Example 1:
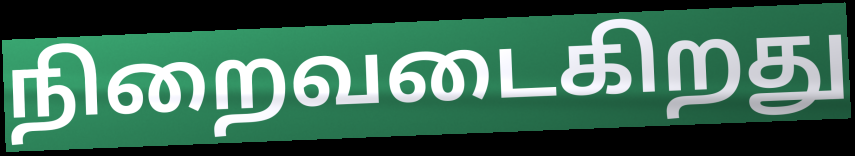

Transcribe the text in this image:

நிறைவடைகிறது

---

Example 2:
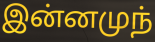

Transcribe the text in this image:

இன்னமுந்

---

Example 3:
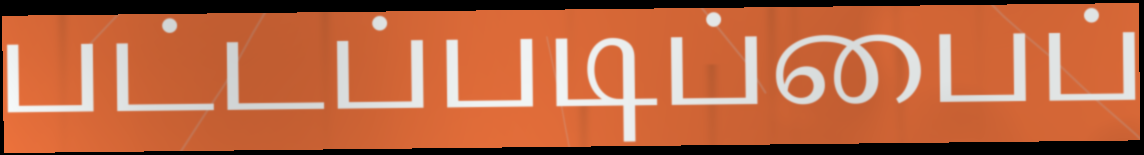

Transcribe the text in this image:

பட்டப்படிப்பைப்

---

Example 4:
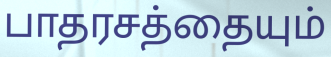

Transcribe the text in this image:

பாதரசத்தையும்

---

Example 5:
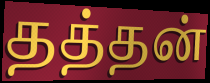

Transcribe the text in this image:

தத்தன்